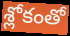
శ్లోకంతో